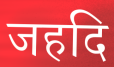
जहदि